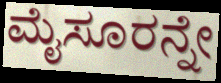
ಮೈಸೂರನ್ನೇ